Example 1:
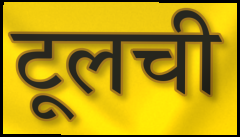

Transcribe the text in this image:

टूलची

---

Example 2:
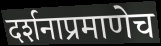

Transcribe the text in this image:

दर्शनाप्रमाणेच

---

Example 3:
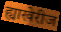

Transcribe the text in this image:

ह्याखेरीज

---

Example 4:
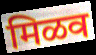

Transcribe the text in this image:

मिळव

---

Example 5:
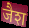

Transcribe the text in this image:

जैश